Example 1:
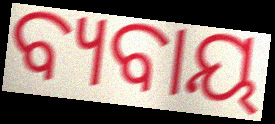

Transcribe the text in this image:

ବ୍ୟବାୟ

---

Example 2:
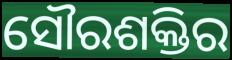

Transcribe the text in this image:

ସୌରଶକ୍ତିର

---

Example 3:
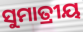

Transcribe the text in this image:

ସୁମାତ୍ରୀୟ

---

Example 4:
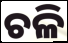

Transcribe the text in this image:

ଚଳି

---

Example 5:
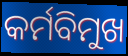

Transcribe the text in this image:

କର୍ମବିମୁଖ